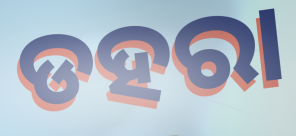
ଡହରା